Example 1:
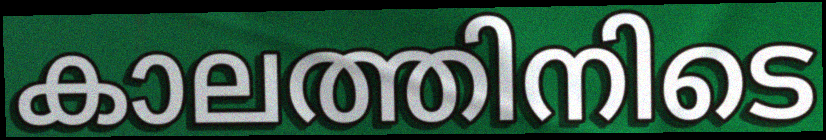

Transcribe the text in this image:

കാലത്തിനിടെ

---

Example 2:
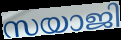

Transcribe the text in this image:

സയാജി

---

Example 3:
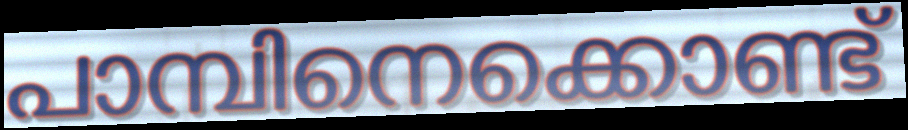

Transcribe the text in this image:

പാമ്പിനെക്കൊണ്ട്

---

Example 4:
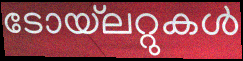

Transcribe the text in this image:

ടോയ്‌ലറ്റുകൾ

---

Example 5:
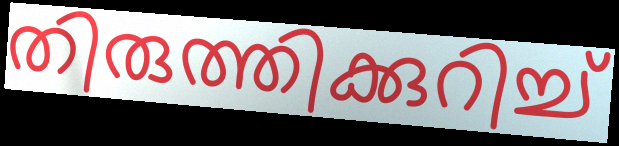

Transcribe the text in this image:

തിരുത്തിക്കുറിച്ച്